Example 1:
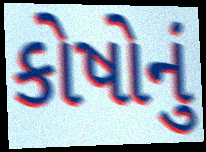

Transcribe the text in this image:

કોષોનું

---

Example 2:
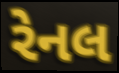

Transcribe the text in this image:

રેનલ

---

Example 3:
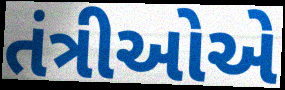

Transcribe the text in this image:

તંત્રીઓએ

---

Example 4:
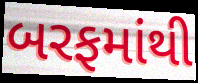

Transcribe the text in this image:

બરફમાંથી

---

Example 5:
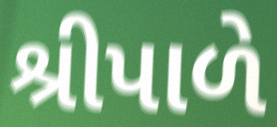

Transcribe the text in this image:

શ્રીપાળે